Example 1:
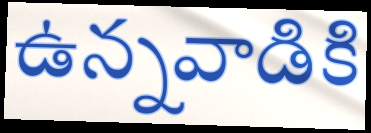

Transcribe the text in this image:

ఉన్నవాడికి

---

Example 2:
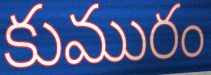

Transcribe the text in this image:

కుమురం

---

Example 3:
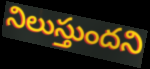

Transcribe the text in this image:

నిలుస్తుందని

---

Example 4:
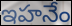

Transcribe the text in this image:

ఇహనేం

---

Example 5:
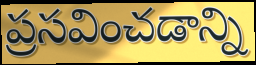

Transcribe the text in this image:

ప్రసవించడాన్ని